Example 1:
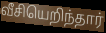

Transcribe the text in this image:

வீசியெறிந்தார்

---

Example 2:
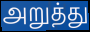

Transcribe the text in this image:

அறுத்து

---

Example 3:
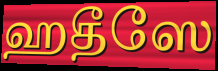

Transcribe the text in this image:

ஹதீஸே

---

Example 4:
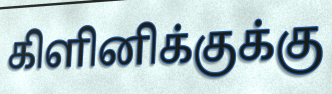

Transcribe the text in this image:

கிளினிக்குக்கு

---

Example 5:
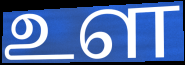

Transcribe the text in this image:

உள